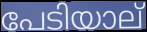
പേടിയാല്